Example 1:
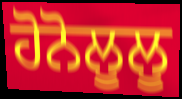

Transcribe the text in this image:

ਹੋਨੋਲੂਲੂ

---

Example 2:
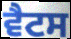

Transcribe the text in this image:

ਵੈਟਸ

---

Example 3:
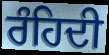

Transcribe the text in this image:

ਰੰਹਿਦੀ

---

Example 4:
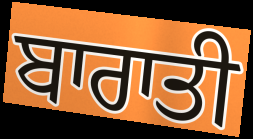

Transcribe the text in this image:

ਬਾਰਾਤੀ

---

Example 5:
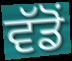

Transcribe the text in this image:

ਵੱਡੋਂ